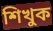
শিখুক